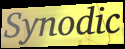
Synodic